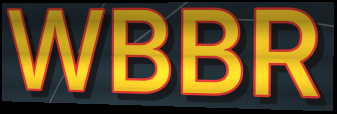
WBBR